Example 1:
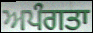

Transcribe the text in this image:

ਅਪੰਗਤਾ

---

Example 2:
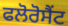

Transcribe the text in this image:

ਫਲੋਰੋਸੈਂਟ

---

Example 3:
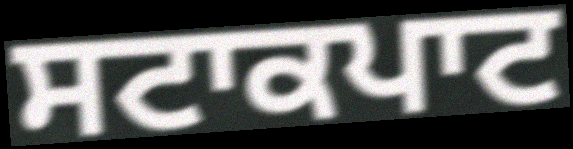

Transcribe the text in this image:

ਸਟਾਕਪਾਟ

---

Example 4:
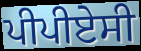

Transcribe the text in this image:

ਪੀਪੀਏਸੀ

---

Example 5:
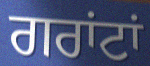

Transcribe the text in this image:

ਗਰਾਂਟਾਂ